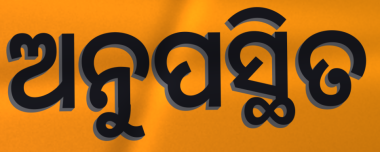
ଅନୁପସ୍ଥିତ